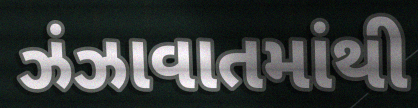
ઝંઝાવાતમાંથી